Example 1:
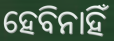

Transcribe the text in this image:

ହେବିନାହିଁ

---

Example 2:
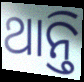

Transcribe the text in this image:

ଥାନ୍ତି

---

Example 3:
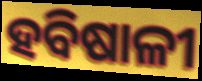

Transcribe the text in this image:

ହବିଷାଳୀ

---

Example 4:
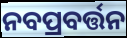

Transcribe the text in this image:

ନବପ୍ରବର୍ତ୍ତନ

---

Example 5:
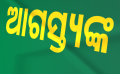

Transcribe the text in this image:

ଆଗସ୍ତ୍ୟଙ୍କ